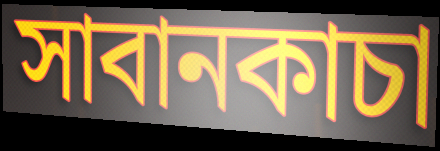
সাবানকাচা